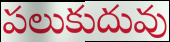
పలుకుదువు